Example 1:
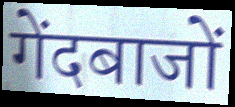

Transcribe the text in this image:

गेंदबाजों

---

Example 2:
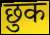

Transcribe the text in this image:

छुक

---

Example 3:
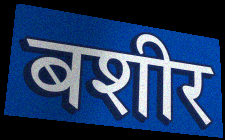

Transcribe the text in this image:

बशीर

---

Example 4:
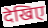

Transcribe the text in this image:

देखिए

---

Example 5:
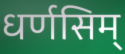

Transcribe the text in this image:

धर्णसिम्